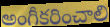
అంగీకరించాలి